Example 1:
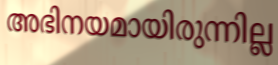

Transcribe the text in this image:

അഭിനയമായിരുന്നില്ല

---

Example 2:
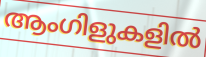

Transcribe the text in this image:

ആംഗിളുകളിൽ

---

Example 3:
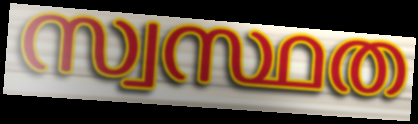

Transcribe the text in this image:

സ്വസ്ഥത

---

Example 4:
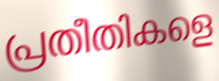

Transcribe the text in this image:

പ്രതീതികളെ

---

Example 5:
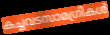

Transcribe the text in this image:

കച്ചവടസാമഗ്രികൾ